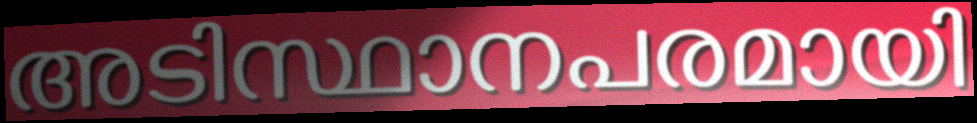
അടിസ്ഥാനപരമായി